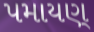
પમાયણ્